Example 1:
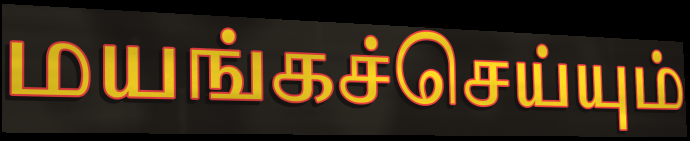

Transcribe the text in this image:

மயங்கச்செய்யும்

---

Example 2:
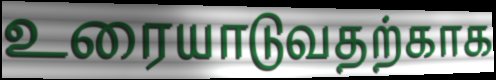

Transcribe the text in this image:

உரையாடுவதற்காக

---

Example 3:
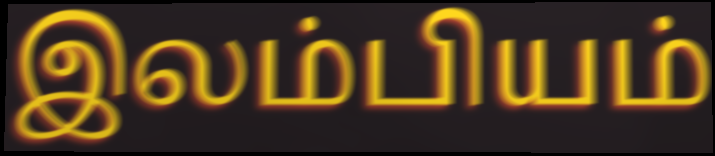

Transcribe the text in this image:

இலம்பியம்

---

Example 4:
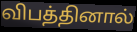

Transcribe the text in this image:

விபத்தினால்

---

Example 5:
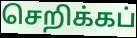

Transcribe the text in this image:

செறிக்கப்